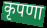
कृपणा